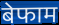
बेफाम